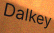
Dalkey